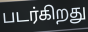
படர்கிறது